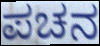
ಪಚನ